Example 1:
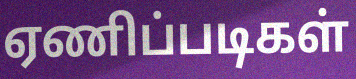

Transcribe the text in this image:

ஏணிப்படிகள்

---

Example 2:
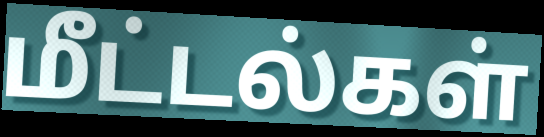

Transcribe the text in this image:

மீட்டல்கள்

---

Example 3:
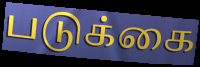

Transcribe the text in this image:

படுக்கை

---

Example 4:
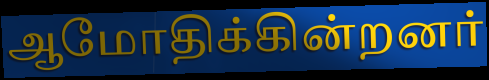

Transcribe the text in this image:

ஆமோதிக்கின்றனர்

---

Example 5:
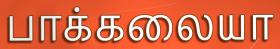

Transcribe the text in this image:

பாக்கலையா